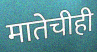
मातेचीही